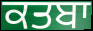
ਕਤਬਾ